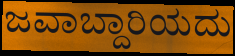
ಜವಾಬ್ದಾರಿಯದು